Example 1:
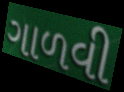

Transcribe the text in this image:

ગાળવી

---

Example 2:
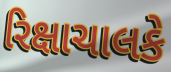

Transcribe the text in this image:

રિક્ષાચાલકે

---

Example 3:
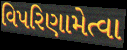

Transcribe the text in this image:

વિપરિણામેત્વા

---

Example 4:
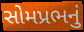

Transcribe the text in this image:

સોમપ્રભનું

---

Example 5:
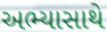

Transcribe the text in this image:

અભ્યાસાથે